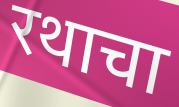
रथाचा